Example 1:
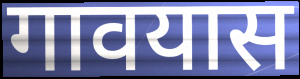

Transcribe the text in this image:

गावयास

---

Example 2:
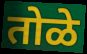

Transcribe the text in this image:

तोळे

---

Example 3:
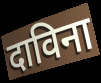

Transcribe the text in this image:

दाविना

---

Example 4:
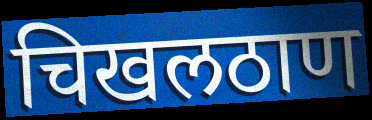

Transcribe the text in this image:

चिखलठाण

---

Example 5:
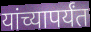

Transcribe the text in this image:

यांच्यापर्यंत